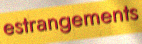
estrangements